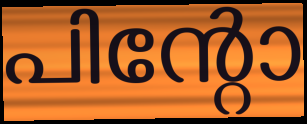
പിന്റോ